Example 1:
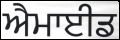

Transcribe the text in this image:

ਐਮਾਈਡ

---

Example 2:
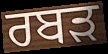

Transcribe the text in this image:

ਰਬੜ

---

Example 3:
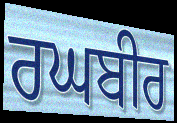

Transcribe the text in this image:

ਰਘਬੀਰ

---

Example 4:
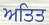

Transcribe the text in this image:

ਅਤਿਤ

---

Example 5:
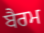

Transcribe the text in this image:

ਬੈਰਮ